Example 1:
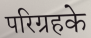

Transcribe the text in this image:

परिग्रहके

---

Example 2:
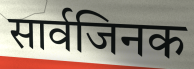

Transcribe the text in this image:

सार्वजिनक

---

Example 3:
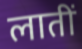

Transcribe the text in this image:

लातीं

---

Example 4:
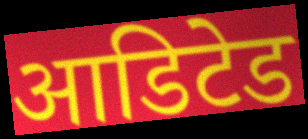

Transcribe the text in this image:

आडिटेड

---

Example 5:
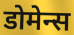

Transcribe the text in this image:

डोमेन्स